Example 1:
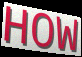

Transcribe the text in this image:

HOW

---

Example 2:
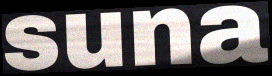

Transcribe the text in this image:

suna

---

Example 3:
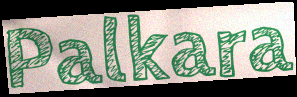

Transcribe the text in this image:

Palkara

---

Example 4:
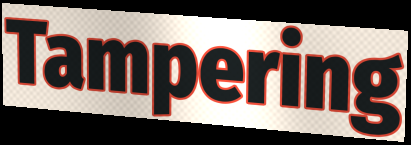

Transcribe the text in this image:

Tampering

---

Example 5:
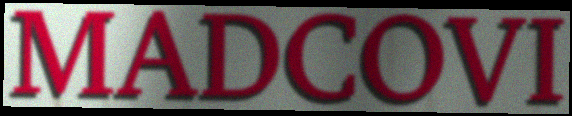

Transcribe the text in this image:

MADCOVI